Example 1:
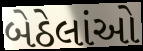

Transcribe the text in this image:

બેઠેલાંઓ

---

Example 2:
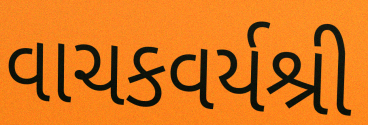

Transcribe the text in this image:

વાચકવર્યશ્રી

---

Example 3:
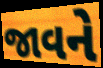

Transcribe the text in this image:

જાવને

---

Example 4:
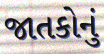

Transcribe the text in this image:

જાતકોનું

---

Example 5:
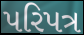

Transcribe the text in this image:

પરિપત્ર